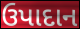
ઉપાદાન